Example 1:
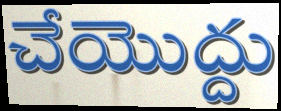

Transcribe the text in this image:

చేయొద్దు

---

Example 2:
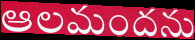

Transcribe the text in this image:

ఆలమందను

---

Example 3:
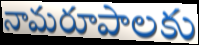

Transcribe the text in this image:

నామరూపాలకు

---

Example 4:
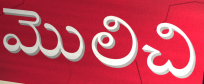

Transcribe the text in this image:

మొలిచి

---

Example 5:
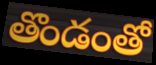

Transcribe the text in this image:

తొండంతో